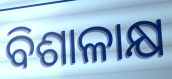
ବିଶାଳାକ୍ଷ